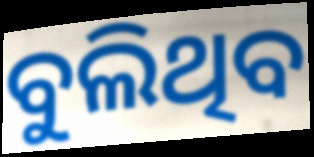
ବୁଲିଥିବ